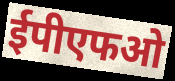
ईपीएफओ